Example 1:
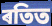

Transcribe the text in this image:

ৰতিত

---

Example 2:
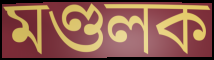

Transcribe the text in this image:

মণ্ডলক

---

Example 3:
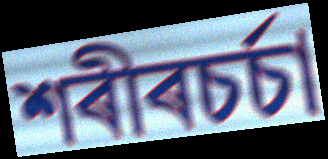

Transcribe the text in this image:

শৰীৰচৰ্চা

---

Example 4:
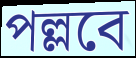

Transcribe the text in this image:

পল্লবে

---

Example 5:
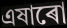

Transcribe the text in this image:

এষাৰো